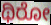
ಥಿರೋ